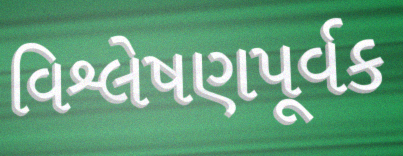
વિશ્લેષણપૂર્વક